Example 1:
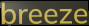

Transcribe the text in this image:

breeze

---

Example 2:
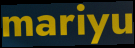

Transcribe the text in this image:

mariyu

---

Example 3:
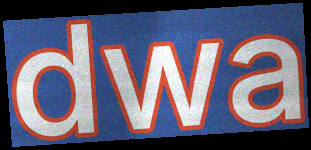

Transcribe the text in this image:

dwa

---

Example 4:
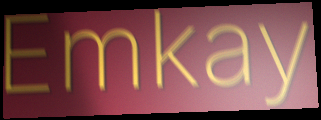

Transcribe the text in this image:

Emkay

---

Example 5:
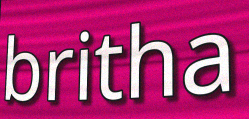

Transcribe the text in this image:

britha